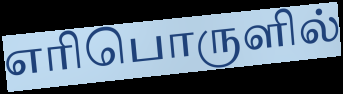
எரிபொருளில்